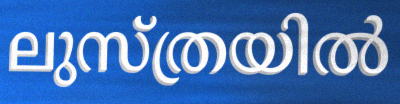
ലുസ്ത്രയിൽ